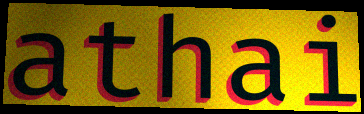
athai